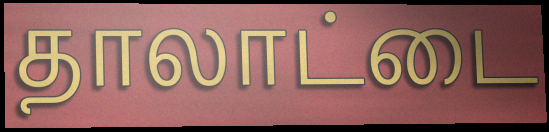
தாலாட்டை